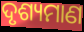
ଦୃଶ୍ୟମାଣ